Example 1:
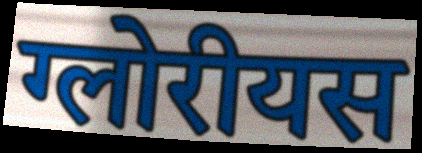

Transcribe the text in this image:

ग्लोरीयस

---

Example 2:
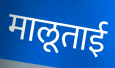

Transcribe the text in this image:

मालूताई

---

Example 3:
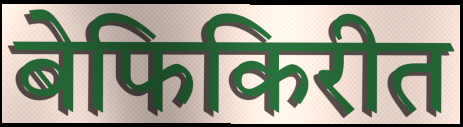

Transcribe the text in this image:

बेफिकिरीत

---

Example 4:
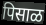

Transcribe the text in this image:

पिसाळ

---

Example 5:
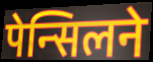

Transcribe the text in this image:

पेन्सिलने